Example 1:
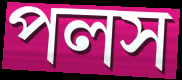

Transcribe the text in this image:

পলস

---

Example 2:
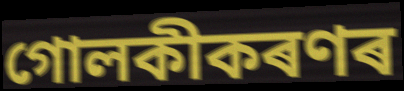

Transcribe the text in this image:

গোলকীকৰণৰ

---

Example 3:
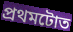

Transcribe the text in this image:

প্ৰথমটোত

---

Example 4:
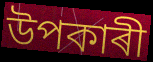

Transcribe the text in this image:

উপকাৰী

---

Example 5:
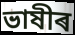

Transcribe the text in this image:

ভাষীৰ